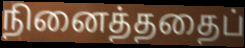
நினைத்ததைப்